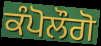
ਕੰਪੋਲੌਗੋ